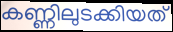
കണ്ണിലുടക്കിയത്